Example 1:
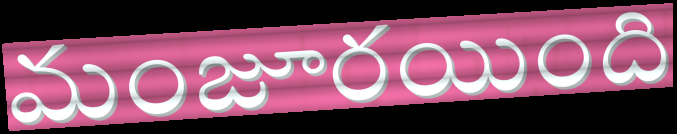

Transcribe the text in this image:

మంజూరయింది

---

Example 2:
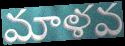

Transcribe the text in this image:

మాళవ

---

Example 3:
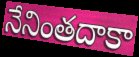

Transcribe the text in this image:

నేనింతదాకా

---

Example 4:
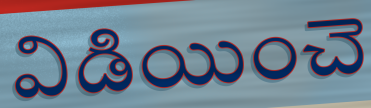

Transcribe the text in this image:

విడియించె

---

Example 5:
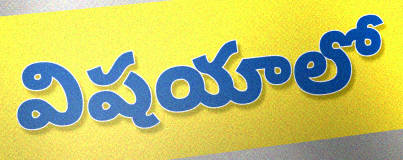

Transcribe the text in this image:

విషయాలో